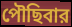
পৌছিবার